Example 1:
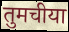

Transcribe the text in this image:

तुमचीया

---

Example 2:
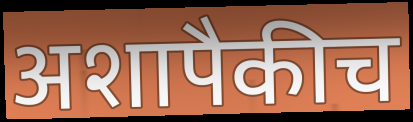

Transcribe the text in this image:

अशापैकीच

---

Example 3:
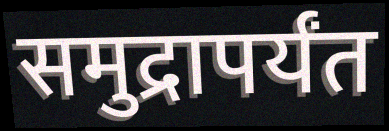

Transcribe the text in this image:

समुद्रापर्यंत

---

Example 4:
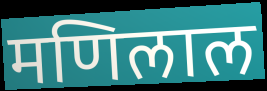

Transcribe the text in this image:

मणिलाल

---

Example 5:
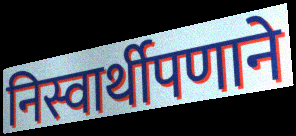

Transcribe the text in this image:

निस्वार्थीपणाने